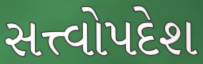
સત્ત્વોપદેશ